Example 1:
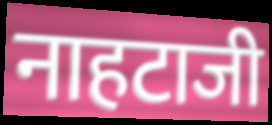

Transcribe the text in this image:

नाहटाजी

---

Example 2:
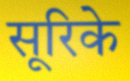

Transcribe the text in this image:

सूरिके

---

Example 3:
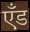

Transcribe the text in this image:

एँड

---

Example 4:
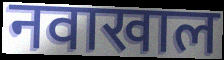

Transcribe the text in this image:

नवाखाल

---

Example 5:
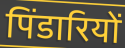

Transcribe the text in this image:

पिंडारियों